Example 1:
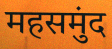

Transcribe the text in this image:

महसमुंद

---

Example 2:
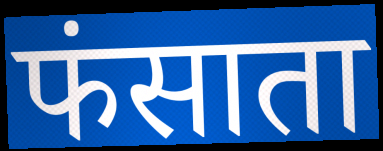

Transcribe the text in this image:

फंसाता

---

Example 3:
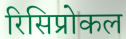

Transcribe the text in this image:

रिसिप्रोकल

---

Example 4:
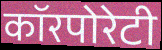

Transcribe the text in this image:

कॉरपोरेटी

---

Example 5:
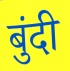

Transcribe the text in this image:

बुंदी